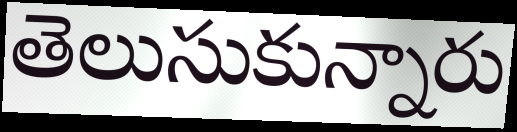
తెలుసుకున్నారు